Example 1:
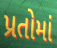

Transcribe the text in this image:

પ્રતોમાં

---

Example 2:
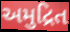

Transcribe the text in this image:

અમુદ્રિત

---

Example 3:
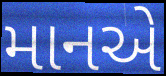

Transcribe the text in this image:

માનએ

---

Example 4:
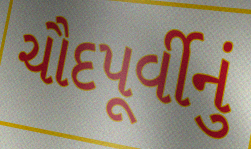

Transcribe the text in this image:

ચૌદપૂર્વીનું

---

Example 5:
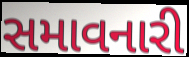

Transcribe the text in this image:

સમાવનારી